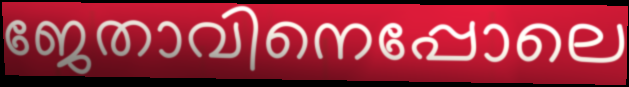
ജേതാവിനെപ്പോലെ